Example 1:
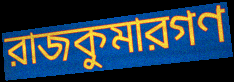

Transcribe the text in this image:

রাজকুমারগণ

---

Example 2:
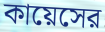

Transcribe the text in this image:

কায়েসের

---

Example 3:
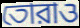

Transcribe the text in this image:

তোরাও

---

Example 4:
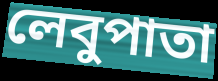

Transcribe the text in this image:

লেবুপাতা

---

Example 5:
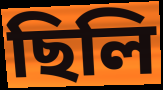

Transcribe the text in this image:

ছিলি